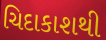
ચિદાકાશથી